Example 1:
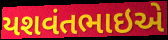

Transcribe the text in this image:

યશવંતભાઇએ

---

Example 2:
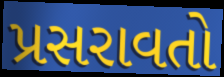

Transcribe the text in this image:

પ્રસરાવતો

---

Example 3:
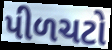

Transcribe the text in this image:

પીળચટો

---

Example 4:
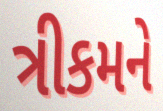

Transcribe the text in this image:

ત્રીકમને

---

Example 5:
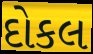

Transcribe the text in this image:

દોકલ